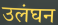
उलंघन